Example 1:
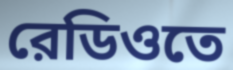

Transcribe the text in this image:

রেডিওতে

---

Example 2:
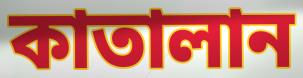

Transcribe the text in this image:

কাতালান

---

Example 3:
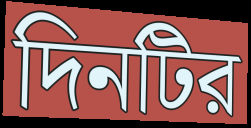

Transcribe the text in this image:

দিনটির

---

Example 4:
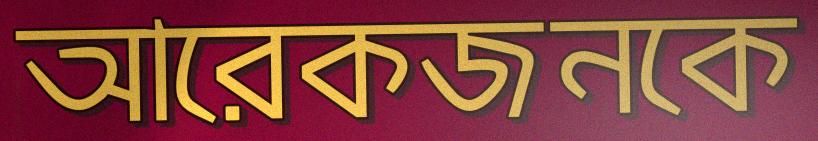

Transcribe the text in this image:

আরেকজনকে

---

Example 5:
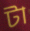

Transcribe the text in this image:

টা